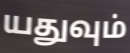
யதுவும்